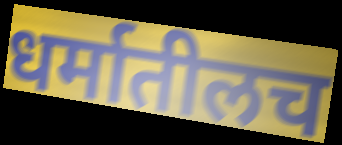
धर्मातीलच